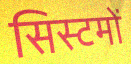
सिस्टमों